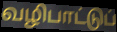
வழிபாட்டுப்